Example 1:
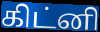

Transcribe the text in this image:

கிட்னி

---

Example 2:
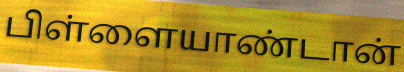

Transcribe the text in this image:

பிள்ளையாண்டான்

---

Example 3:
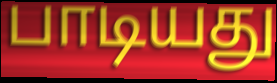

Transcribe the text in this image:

பாடியது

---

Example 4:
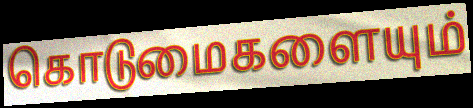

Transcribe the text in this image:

கொடுமைகளையும்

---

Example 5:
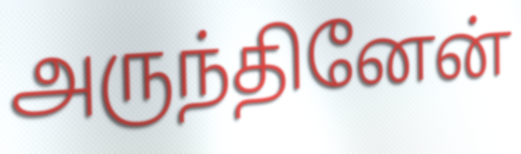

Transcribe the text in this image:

அருந்தினேன்